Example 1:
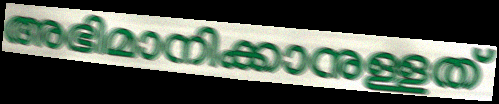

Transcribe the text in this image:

അഭിമാനിക്കാനുള്ളത്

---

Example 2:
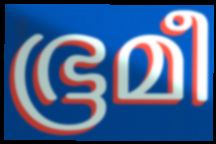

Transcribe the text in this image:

ഭൂമീ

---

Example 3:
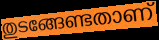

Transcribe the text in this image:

തുടങ്ങേണ്ടതാണ്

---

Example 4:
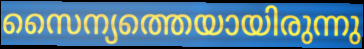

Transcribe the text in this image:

സൈന്യത്തെയായിരുന്നു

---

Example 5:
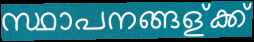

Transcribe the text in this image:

സ്ഥാപനങ്ങള്ക്ക്